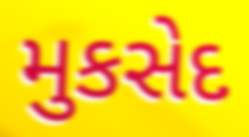
મુકસેદ